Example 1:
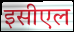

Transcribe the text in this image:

इसीएल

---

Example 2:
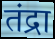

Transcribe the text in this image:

तंद्रा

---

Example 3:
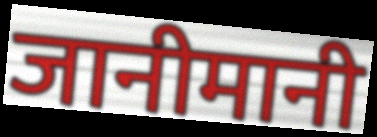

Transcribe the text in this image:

जानीमानी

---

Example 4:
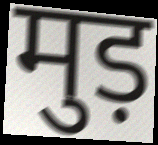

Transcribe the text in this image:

मुड़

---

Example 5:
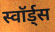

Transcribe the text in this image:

स्वॉर्ड्स